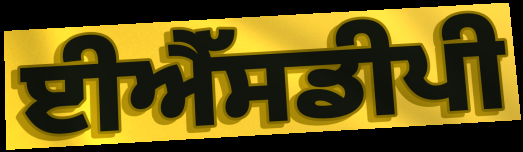
ਈਐੱਸਡੀਪੀ